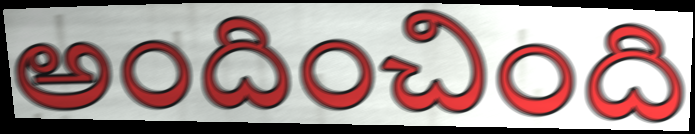
అందించింది